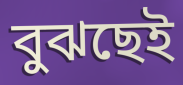
বুঝছেই